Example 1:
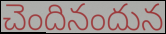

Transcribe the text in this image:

చెందినందున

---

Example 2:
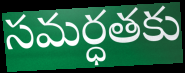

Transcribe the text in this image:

సమర్ధతకు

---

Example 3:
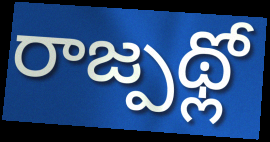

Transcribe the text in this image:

రాజ్పథ్లో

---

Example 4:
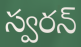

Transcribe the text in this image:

స్వరన్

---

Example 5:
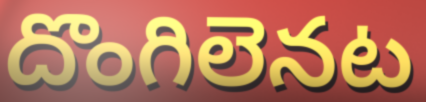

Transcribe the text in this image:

దొంగిలెనట